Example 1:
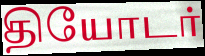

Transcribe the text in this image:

தியோடர்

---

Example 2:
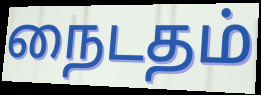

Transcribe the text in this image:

நைடதம்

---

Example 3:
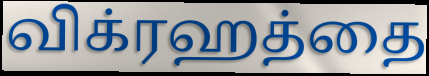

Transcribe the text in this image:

விக்ரஹத்தை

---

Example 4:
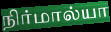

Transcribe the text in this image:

நிர்மால்யா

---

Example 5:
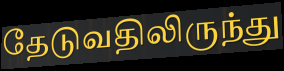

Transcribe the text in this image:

தேடுவதிலிருந்து